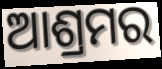
ଆଶ୍ରମର